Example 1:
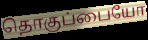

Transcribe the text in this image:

தொகுப்பையோ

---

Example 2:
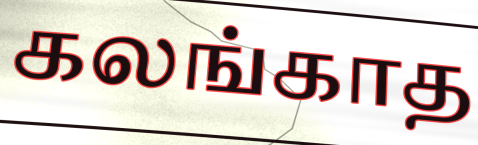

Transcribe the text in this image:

கலங்காத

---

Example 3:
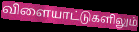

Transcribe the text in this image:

விளையாட்டுகளிலும்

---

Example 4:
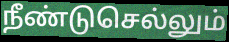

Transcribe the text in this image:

நீண்டுசெல்லும்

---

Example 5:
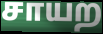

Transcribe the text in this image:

சாயற